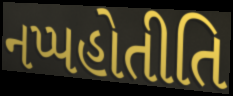
નપ્પહોતીતિ